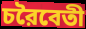
চরৈবেতী